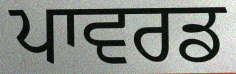
ਪਾਵਰਡ